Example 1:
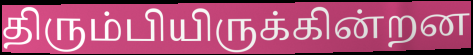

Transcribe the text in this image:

திரும்பியிருக்கின்றன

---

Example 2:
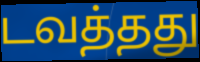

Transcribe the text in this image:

டவத்தது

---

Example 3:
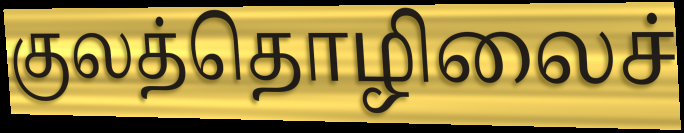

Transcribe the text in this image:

குலத்தொழிலைச்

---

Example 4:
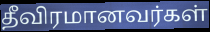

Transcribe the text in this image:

தீவிரமானவர்கள்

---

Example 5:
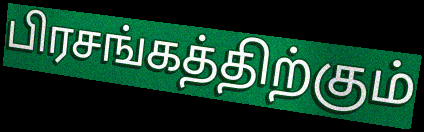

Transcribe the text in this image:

பிரசங்கத்திற்கும்